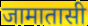
जामातासी